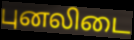
புனலிடை